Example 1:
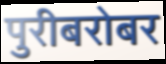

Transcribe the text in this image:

पुरीबरोबर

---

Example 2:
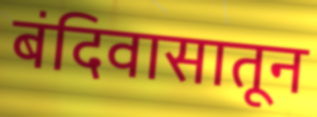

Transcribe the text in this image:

बंदिवासातून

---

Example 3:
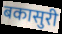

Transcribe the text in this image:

बकासुरी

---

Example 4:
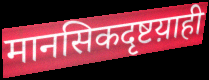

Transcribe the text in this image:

मानसिकदृष्टय़ाही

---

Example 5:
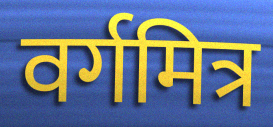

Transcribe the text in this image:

वर्गमित्र